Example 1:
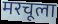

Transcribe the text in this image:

मरचूला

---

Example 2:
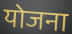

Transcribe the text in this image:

योजना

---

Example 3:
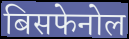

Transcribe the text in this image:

बिसफेनोल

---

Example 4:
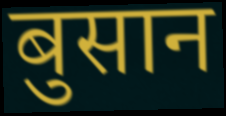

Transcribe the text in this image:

बुसान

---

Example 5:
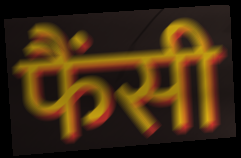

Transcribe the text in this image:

फैंसी